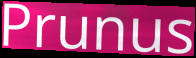
Prunus